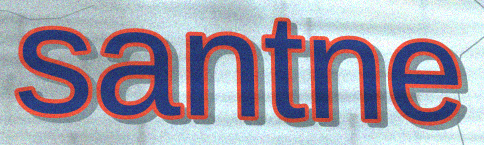
santne